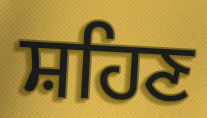
ਸ਼ਹਿਣ